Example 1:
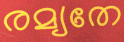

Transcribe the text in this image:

രമ്യതേ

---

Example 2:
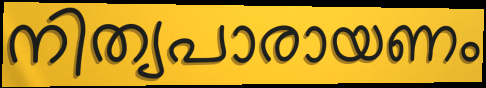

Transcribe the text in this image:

നിത്യപാരായണം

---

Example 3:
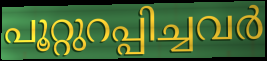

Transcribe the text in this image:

പൂറ്റുറപ്പിച്ചവർ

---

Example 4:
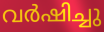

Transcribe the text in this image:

വർഷിച്ചു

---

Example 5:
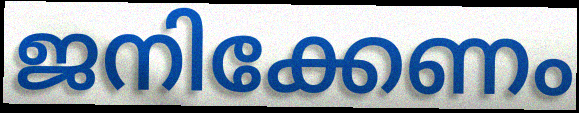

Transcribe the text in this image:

ജനിക്കേണം